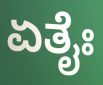
ಏತೈಃ